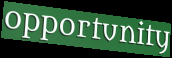
opportunity